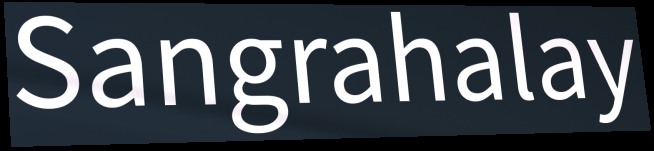
Sangrahalay